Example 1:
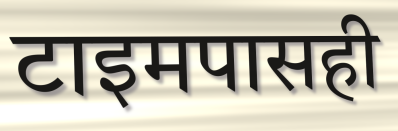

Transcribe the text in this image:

टाइमपासही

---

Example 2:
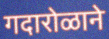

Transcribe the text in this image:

गदारोळाने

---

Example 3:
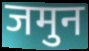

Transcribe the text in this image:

जमुन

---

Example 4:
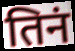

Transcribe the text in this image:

तिनं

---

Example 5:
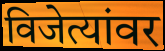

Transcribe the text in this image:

विजेत्यांवर